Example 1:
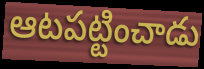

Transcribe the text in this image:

ఆటపట్టించాడు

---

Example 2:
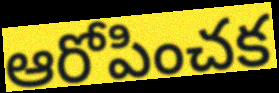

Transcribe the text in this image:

ఆరోపించక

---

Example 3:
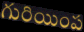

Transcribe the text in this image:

గురియింప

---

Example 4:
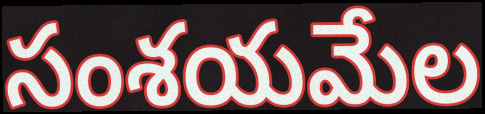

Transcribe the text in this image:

సంశయమేల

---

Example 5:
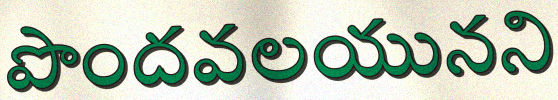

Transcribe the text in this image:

పొందవలయునని